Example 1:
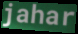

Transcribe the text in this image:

jahar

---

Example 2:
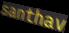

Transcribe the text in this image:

santhav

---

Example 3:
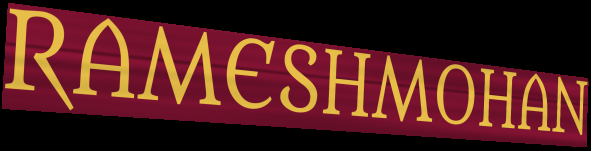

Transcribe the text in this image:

RAMESHMOHAN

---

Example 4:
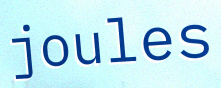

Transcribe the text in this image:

joules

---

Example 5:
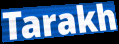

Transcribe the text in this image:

Tarakh